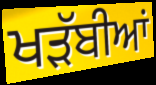
ਖੜੱਬੀਆਂ